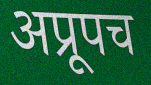
अप्रूपच